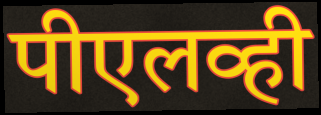
पीएलव्ही